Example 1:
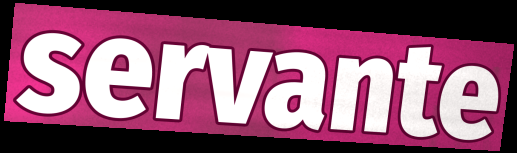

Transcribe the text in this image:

servante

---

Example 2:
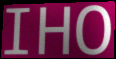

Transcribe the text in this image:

IHO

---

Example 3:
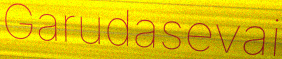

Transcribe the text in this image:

Garudasevai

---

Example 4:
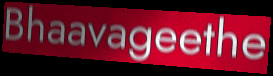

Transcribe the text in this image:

Bhaavageethe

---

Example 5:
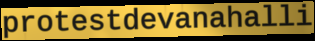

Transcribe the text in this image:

protestdevanahalli